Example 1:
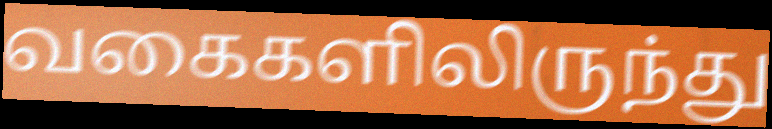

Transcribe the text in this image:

வகைகளிலிருந்து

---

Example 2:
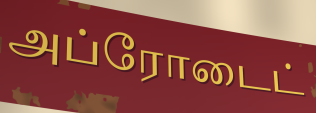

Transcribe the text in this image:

அப்ரோடைட்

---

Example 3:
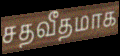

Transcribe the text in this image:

சதவீதமாக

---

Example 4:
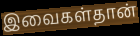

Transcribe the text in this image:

இவைகள்தான்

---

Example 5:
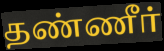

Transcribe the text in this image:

தண்ணீர்